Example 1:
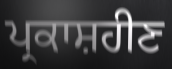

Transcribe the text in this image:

ਪ੍ਰਕਾਸ਼ਹੀਣ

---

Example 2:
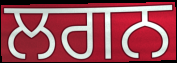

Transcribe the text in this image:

ਲਗਨ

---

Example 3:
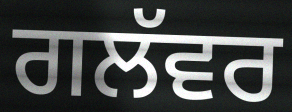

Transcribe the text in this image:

ਗਲੱਵਰ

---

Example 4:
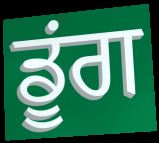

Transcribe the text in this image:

ਡੂਂਗ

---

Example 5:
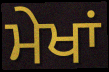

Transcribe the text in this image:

ਮੇਖਾਂ